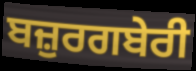
ਬਜ਼ੁਰਗਬੇਰੀ